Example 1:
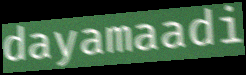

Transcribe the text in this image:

dayamaadi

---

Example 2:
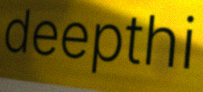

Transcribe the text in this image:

deepthi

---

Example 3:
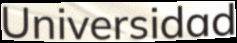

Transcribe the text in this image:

Universidad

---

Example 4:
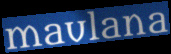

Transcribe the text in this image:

maulana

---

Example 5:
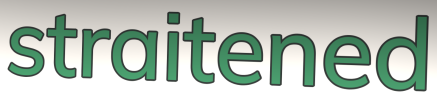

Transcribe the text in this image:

straitened